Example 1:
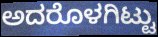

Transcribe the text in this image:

ಅದರೊಳಗಿಟ್ಟು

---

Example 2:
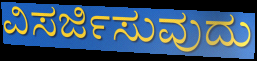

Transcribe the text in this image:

ವಿಸರ್ಜಿಸುವುದು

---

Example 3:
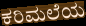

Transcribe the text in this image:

ಕರಿಮಲೆಯ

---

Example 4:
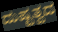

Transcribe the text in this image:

ದುಷ್ಟತ್ವದ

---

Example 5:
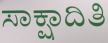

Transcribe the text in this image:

ಸಾಕ್ಷಾದಿತಿ